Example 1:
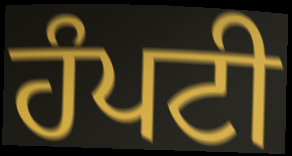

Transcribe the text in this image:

ਹੰਪਟੀ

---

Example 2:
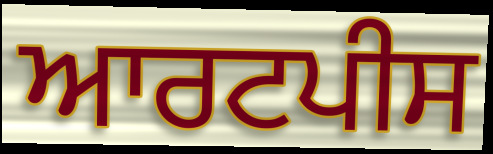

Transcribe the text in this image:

ਆਰਟਪੀਸ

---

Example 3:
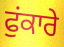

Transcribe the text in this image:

ਫੁਂਕਾਰੇ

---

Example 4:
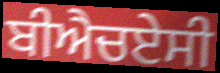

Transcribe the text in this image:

ਬੀਐਚਏਸੀ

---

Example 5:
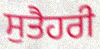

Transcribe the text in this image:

ਸੁਤੈਹਰੀ